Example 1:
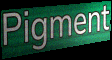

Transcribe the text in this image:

Pigment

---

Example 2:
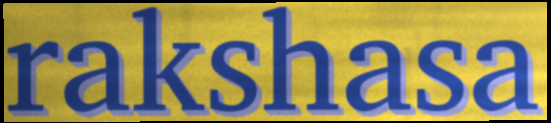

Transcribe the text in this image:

rakshasa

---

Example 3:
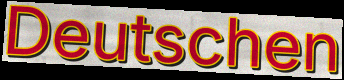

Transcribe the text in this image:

Deutschen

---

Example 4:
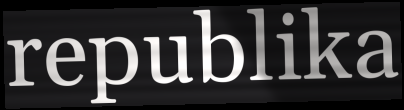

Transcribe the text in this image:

republika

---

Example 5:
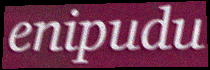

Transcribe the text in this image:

enipudu